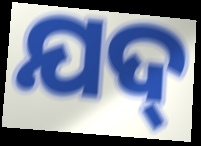
ଯଦ୍